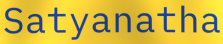
Satyanatha